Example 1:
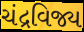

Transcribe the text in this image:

ચંદ્રવિજ્ય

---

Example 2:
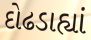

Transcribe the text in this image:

દોઢડાહ્યાં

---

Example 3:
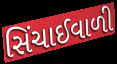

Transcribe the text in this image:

સિંચાઈવાળી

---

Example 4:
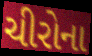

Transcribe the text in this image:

ચીરોના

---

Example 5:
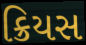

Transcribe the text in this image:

ક્રિયસ